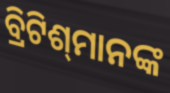
ବ୍ରିଟିଶ୍‌ମାନଙ୍କ